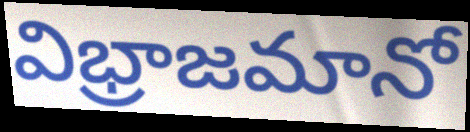
విభ్రాజమానో